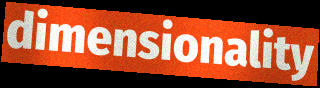
dimensionality